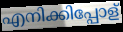
എനിക്കിപ്പോള്